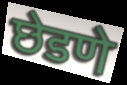
छेडणे